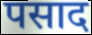
पसाद